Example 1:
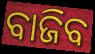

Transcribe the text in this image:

ବାଜିବ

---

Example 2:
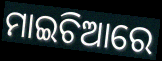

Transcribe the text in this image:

ମାଇଚିଆରେ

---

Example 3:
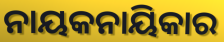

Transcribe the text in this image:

ନାୟକନାୟିକାର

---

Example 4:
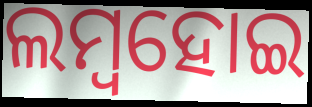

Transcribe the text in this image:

ଲମ୍ୱହୋଇ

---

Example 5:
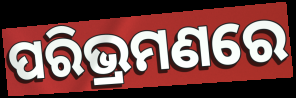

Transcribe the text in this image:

ପରିଭ୍ରମଣରେ